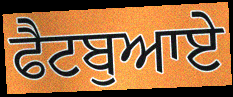
ਫੈਟਬੁਆਏ